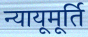
न्यायूमूर्ति